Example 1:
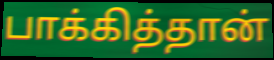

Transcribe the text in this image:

பாக்கித்தான்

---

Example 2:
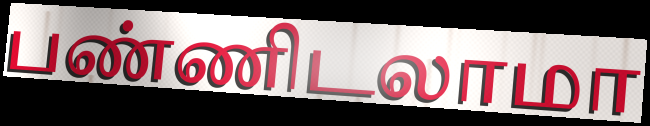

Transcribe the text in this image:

பண்ணிடலாமா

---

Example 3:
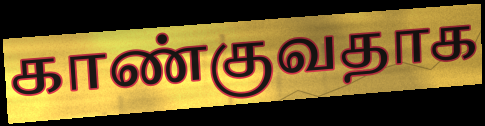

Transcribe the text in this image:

காண்குவதாக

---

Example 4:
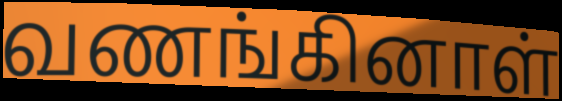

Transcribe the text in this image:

வணங்கினாள்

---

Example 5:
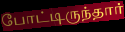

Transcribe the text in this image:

போட்டிருந்தார்